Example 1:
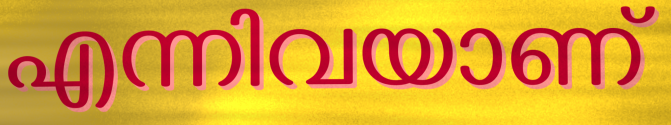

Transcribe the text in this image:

എന്നിവയാണ്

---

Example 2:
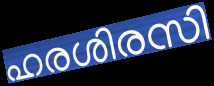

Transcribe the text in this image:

ഹരശിരസി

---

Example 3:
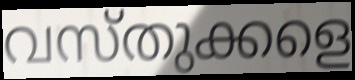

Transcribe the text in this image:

വസ്തുക്കളെ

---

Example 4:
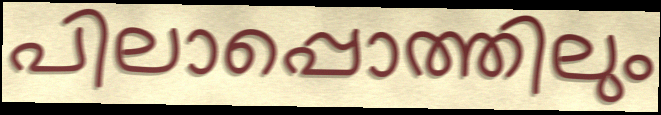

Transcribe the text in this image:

പിലാപ്പൊത്തിലും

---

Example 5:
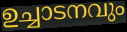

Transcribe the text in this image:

ഉച്ചാടനവും